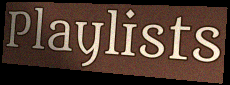
Playlists